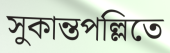
সুকান্তপল্লিতে